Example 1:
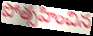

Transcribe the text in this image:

పోత్సహించిన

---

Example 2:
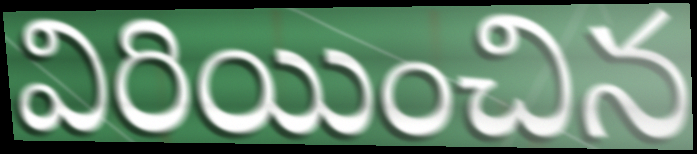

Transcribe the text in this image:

విరియించిన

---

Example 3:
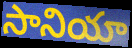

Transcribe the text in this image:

సానియా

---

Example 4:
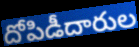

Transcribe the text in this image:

దోపిడీదారుల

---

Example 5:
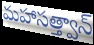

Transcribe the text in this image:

మహాసత్త్వాన్